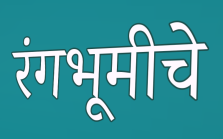
रंगभूमीचे